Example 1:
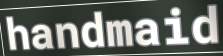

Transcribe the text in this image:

handmaid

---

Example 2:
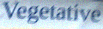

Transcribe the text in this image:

Vegetative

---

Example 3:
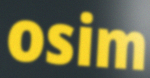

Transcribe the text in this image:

osim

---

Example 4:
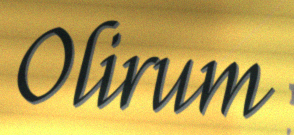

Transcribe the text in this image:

Olirum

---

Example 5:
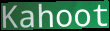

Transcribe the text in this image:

Kahoot